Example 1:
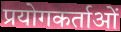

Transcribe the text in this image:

प्रयोगकर्ताओं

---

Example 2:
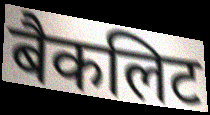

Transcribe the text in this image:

बैकलिट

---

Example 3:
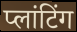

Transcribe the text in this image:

प्लांटिंग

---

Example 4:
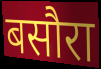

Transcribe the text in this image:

बसौरा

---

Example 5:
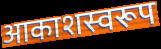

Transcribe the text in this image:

आकाशस्वरूप